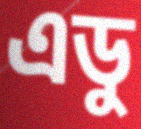
এডু